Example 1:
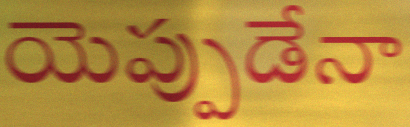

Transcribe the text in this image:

యెప్పుడేనా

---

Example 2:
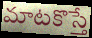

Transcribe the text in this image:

మాటకొస్తే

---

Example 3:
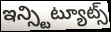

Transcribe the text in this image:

ఇన్స్టిట్యూట్స్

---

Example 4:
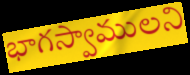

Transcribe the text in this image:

భాగస్వాములని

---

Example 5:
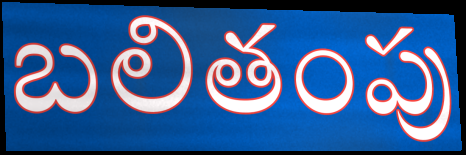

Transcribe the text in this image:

బలితంపు